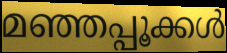
മഞ്ഞപ്പൂക്കൾ